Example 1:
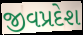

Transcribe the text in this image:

જીવપ્રદેશ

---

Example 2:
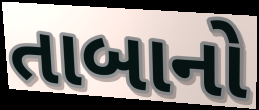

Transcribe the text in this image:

તાબાનો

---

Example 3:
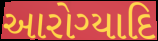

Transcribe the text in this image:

આરોગ્યાદિ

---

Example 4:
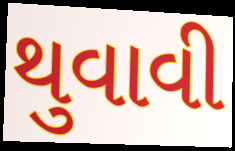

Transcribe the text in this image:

થુવાવી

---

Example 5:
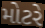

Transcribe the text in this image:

મોટરે